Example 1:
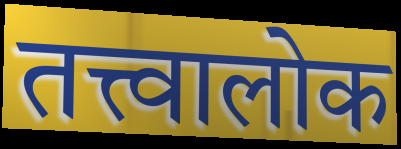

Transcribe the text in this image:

तत्त्वालोक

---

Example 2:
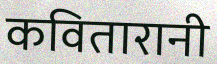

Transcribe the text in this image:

कवितारानी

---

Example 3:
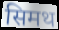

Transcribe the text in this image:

सिमथ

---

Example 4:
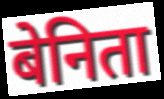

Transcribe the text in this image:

बेनिता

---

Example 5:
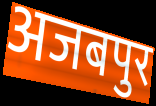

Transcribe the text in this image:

अजबपुर